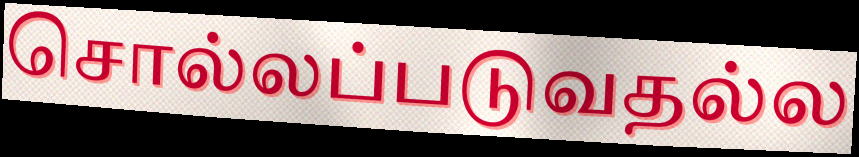
சொல்லப்படுவதல்ல